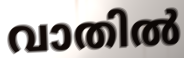
വാതിൽ